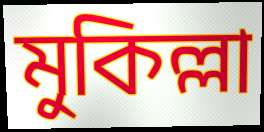
মুকিল্লা